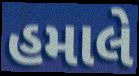
હમાલે